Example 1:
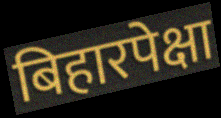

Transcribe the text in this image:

बिहारपेक्षा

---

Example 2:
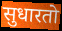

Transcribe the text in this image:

सुधारतो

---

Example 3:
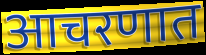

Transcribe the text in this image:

आचरणात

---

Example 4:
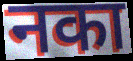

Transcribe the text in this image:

नका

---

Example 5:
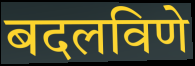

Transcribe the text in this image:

बदलविणे